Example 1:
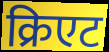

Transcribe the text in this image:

क्रिएट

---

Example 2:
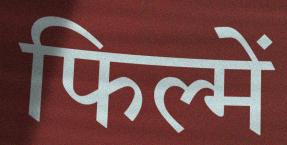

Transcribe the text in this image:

फिल्में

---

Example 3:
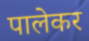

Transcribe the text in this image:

पालेकर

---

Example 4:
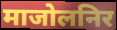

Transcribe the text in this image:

माजोलनिर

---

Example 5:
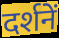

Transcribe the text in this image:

दर्शनें